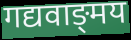
गद्यवाङ्मय